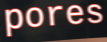
pores